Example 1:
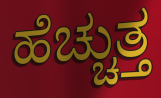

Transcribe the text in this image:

ಹೆಚ್ಚುತ್ತ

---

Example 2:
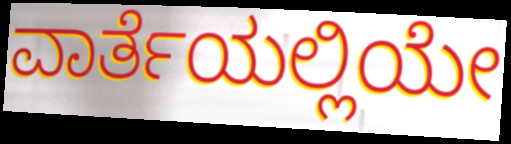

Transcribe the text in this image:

ವಾರ್ತೆಯಲ್ಲಿಯೇ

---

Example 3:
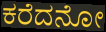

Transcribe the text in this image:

ಕರೆದನೋ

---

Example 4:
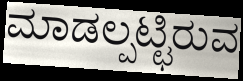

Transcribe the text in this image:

ಮಾಡಲ್ಪಟ್ಟಿರುವ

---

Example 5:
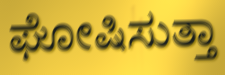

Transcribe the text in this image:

ಘೋಷಿಸುತ್ತಾ